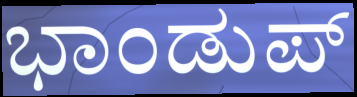
ಭಾಂಡುಪ್